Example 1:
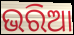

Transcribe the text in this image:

ଭରିଆ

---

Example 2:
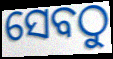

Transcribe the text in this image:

ସେବଠୁ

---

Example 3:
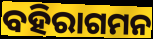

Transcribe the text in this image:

ବହିରାଗମନ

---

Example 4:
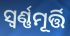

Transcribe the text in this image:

ସ୍ଵର୍ଣ୍ଣମୂର୍ତ୍ତି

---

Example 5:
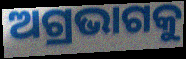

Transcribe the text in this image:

ଅଗ୍ରଭାଗକୁ